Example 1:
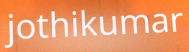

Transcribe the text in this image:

jothikumar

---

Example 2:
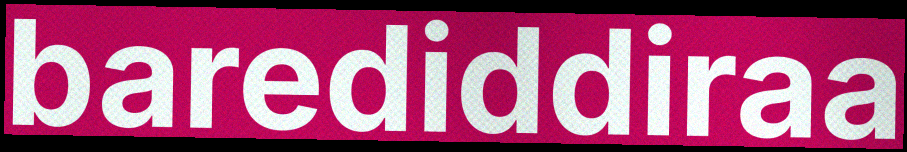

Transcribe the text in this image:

barediddiraa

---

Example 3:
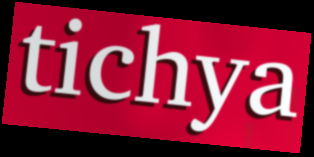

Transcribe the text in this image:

tichya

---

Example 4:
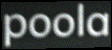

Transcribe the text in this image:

poola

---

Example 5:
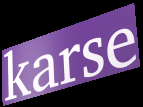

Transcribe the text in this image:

karse